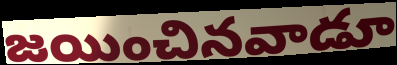
జయించినవాడూ